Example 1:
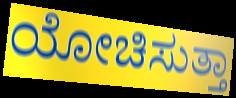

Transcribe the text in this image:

ಯೋಚಿಸುತ್ತಾ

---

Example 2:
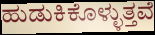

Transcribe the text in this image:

ಹುಡುಕಿಕೊಳ್ಳುತ್ತವೆ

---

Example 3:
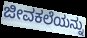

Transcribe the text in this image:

ಜೀವಕಲೆಯನ್ನು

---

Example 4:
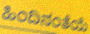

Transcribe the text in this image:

ಹಿಂದಿನಂತೆಯೆ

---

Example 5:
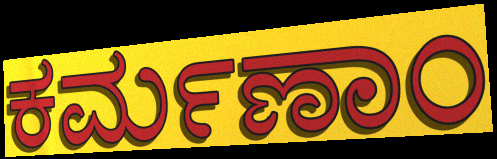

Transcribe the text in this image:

ಕರ್ಮಣಾಂ